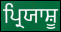
ਪ੍ਰਿਯਾਸ਼ੂ